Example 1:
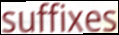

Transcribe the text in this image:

suffixes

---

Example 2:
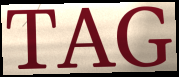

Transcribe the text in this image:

TAG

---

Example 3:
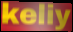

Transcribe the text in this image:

keliy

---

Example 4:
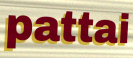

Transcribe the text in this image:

pattai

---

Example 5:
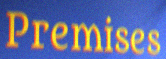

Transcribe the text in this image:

Premises